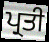
ਪ੍ਰਤੀ